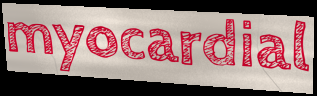
myocardial